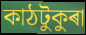
কাঠটুকুৰা